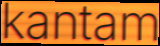
kantam